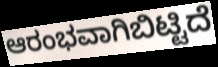
ಆರಂಭವಾಗಿಬಿಟ್ಟಿದೆ